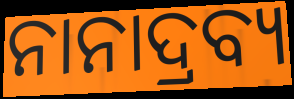
ନାନାଦ୍ରବ୍ୟ